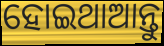
ହୋଇଥାଆନ୍ତୁ